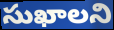
సుఖాలని